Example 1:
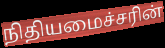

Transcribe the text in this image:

நிதியமைச்சரின்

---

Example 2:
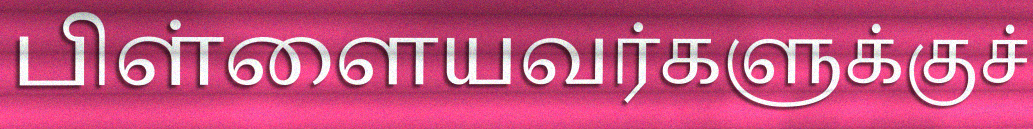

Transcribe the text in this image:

பிள்ளையவர்களுக்குச்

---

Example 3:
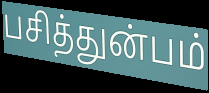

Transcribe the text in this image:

பசித்துன்பம்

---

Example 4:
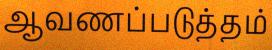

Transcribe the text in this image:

ஆவணப்படுத்தம்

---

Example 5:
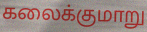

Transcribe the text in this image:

கலைக்குமாறு